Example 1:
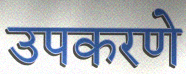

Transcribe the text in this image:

उपकरणे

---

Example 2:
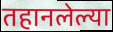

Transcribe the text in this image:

तहानलेल्या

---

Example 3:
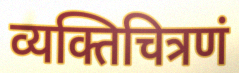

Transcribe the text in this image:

व्यक्तिचित्रणं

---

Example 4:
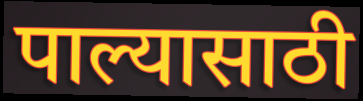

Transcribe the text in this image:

पाल्यासाठी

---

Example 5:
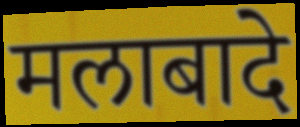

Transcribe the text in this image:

मलाबादे